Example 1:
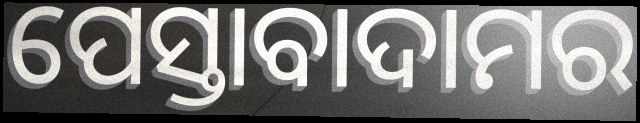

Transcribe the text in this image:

ପେସ୍ତାବାଦାମର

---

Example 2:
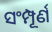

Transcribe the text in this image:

ସଂମ୍ପୂର୍ଣ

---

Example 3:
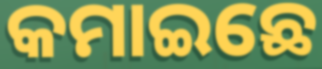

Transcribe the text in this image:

କମାଇଛେ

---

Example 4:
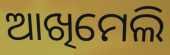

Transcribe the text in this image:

ଆଖିମେଲି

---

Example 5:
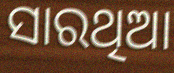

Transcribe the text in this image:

ସାରଥିଆ